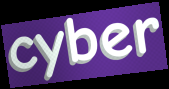
cyber